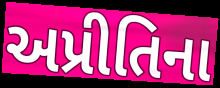
અપ્રીતિના